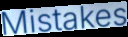
Mistakes